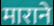
माराने